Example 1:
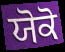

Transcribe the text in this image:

ਯੋਕੋ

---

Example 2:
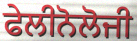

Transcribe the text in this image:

ਫੇਲੀਨੋਲੋਜੀ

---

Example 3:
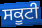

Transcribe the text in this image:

ਸਕੂਟੀ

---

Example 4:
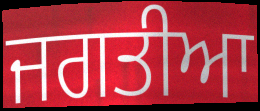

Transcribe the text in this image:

ਜਗਤੀਆ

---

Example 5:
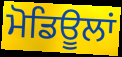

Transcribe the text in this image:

ਮੋਡਿਊਲਾਂ